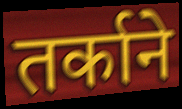
तर्काने